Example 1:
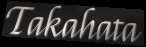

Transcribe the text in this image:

Takahata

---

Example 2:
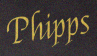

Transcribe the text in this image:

Phipps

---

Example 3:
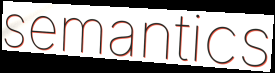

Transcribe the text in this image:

semantics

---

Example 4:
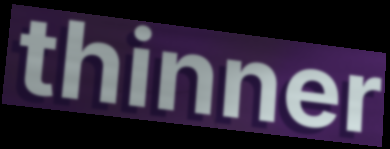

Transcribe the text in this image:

thinner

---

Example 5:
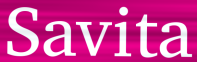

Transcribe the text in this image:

Savita